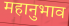
महानुभाव